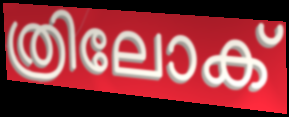
ത്രിലോക്